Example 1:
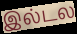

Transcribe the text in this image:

இல்டல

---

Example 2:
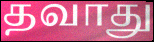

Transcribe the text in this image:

தவாது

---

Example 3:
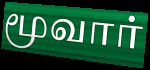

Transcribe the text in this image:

மூவார்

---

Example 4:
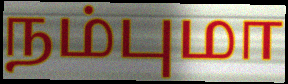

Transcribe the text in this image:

நம்புமா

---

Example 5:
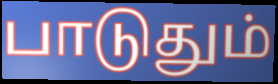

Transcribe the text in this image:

பாடுதும்